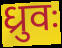
ध्रुवः